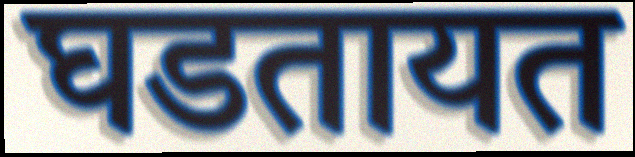
घडतायत